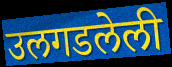
उलगडलेली